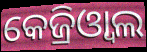
କେଜ୍ରିଓ୍ଵାଲ